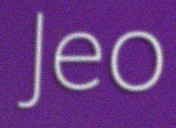
Jeo